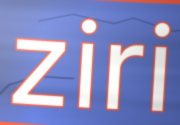
ziri